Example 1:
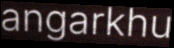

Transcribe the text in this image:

angarkhu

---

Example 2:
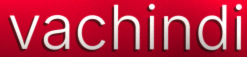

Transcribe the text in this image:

vachindi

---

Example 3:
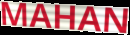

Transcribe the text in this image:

MAHAN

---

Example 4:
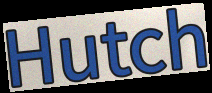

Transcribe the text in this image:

Hutch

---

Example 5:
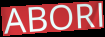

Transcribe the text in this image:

ABORI